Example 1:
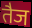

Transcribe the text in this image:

तैज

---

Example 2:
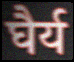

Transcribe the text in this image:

घैर्य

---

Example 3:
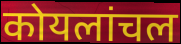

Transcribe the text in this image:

कोयलांचल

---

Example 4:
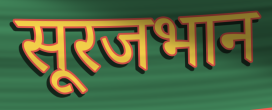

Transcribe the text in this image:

सूरजभान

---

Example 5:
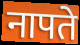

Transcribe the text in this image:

नापते